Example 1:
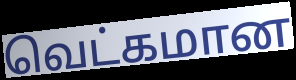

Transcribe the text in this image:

வெட்கமான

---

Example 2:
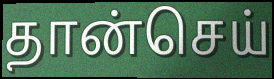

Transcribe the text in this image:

தான்செய்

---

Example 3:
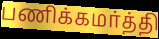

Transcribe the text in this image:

பணிக்கமர்த்தி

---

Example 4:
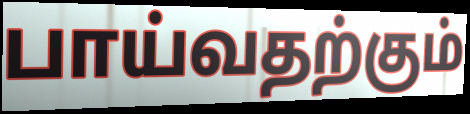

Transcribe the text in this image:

பாய்வதற்கும்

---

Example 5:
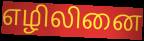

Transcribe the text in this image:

எழிலினை